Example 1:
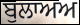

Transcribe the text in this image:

ਬੁਲਾਅਅ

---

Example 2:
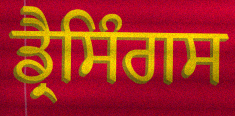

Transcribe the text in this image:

ਡ੍ਰੈਸਿੰਗਸ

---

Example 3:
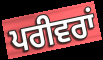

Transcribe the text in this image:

ਪਰੀਵਰਾਂ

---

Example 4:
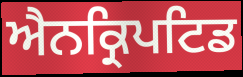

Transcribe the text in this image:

ਐਨਕ੍ਰਿਪਟਿਡ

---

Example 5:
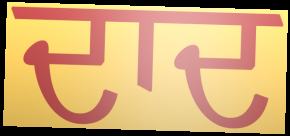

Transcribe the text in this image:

ਦਾਦ